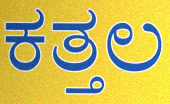
ಕತ್ತಲ